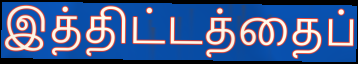
இத்திட்டத்தைப்